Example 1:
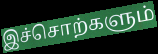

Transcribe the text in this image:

இச்சொற்களும்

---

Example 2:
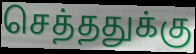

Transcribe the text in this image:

செத்ததுக்கு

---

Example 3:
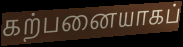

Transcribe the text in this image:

கற்பனையாகப்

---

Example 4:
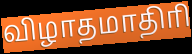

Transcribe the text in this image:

விழாதமாதிரி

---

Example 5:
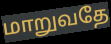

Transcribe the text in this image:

மாறுவதே